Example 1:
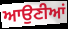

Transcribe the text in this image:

ਆਉਣੀਆਂ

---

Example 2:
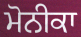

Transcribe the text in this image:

ਮੋਨੀਕਾ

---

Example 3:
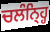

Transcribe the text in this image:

ਚਲੰਨ੍ਹ੍ਹਿ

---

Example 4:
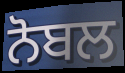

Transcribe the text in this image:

ਨੋਬਲ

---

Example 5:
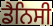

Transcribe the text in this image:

ਡੈਨਿਸੀ